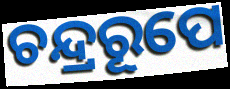
ଚନ୍ଦ୍ରରୂପେ